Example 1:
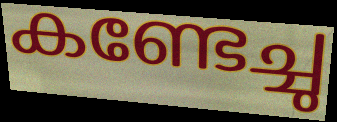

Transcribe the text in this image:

കണ്ടേച്ചു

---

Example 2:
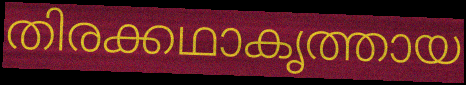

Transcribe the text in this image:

തിരക്കഥാകൃത്തായ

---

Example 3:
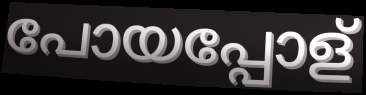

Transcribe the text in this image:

പോയപ്പോള്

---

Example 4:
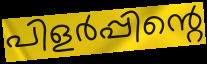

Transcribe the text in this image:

പിളർപ്പിന്റെ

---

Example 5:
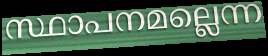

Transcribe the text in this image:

സ്ഥാപനമല്ലെന്ന